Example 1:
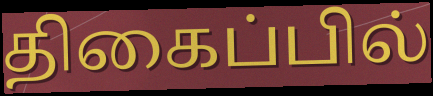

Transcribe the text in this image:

திகைப்பில்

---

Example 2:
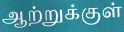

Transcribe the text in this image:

ஆற்றுக்குள்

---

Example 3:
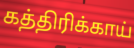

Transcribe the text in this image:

கத்திரிக்காய்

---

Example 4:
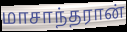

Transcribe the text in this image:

மாசாந்தரான்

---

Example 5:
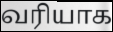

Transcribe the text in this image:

வரியாக